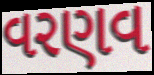
વરણવ